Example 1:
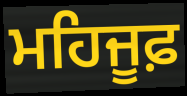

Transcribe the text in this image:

ਮਹਿਜੂਫ਼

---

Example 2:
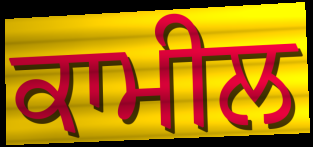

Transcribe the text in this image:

ਕਾਮੀਲ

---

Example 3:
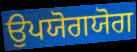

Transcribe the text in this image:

ਉਪਯੋਗਯੋਗ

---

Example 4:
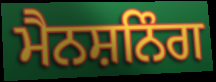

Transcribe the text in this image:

ਮੈਨਸ਼ਨਿੰਗ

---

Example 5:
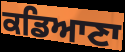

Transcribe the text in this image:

ਕਡਿਆਣਾ